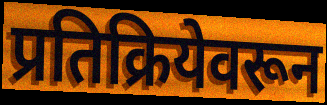
प्रतिक्रियेवरून